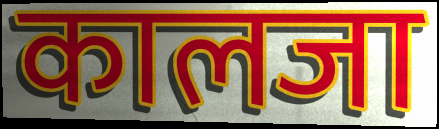
कालजा